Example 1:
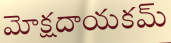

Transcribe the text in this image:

మోక్షదాయకమ్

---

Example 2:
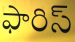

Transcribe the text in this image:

ఫారిస్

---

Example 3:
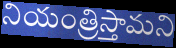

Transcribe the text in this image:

నియంత్రిస్తామని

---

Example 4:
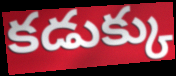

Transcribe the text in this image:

కడుక్కు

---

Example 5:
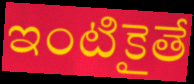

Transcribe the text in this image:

ఇంటికైతే